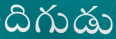
దిగుడు